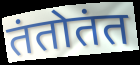
तंतोतंत